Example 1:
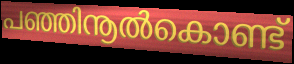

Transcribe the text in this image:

പഞ്ഞിനൂൽകൊണ്ട്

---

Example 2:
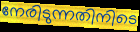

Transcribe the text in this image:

നേരിടുന്നതിനിടെ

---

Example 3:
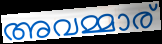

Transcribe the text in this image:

അവമ്മാര്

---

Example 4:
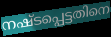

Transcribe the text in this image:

നഷ്ടപ്പെട്ടതിനെ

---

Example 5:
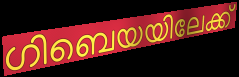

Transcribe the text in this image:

ഗിബെയയിലേക്ക്